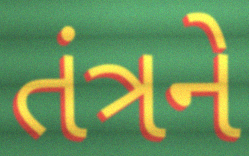
તંત્રને